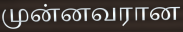
முன்னவரான